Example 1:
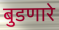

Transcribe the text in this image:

बुडणारे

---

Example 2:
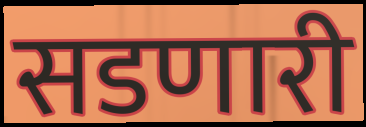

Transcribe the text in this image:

सडणारी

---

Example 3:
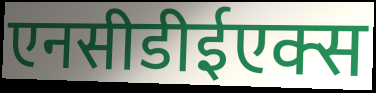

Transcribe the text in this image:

एनसीडीईएक्स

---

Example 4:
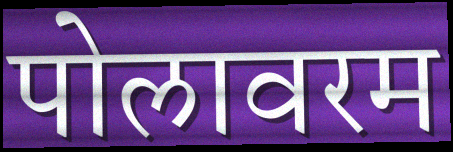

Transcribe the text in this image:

पोलावरम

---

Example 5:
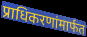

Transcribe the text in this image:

प्राधिकरणांमार्फत